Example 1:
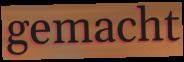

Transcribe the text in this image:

gemacht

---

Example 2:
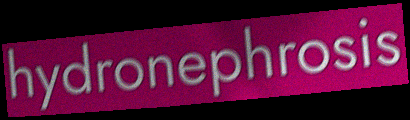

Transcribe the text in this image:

hydronephrosis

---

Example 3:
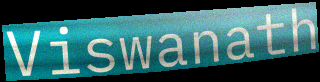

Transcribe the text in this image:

Viswanath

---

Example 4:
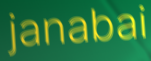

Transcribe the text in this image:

janabai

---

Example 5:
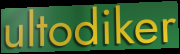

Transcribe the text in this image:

ultodiker